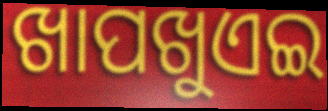
ଖାପଖୁଏଇ